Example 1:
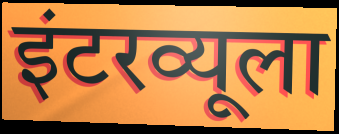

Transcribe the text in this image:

इंटरव्यूला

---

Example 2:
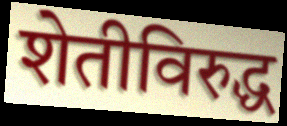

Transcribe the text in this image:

शेतीविरुद्ध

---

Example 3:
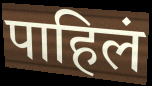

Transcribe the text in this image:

पाहिलं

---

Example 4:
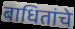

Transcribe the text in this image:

बाधितांचे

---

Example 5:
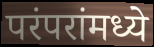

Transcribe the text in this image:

परंपरांमध्ये